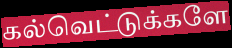
கல்வெட்டுக்களே